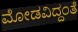
ಮೋಡವಿದ್ದಂತೆ